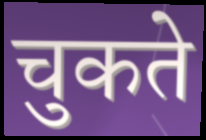
चुकते